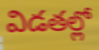
విడతల్లో